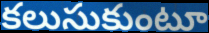
కలుసుకుంటూ